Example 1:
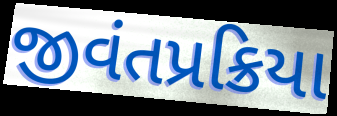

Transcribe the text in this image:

જીવંતપ્રક્રિયા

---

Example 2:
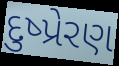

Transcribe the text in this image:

દુષ્પ્રેરણ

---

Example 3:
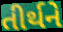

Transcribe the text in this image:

તીર્થને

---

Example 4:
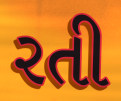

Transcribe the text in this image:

રતી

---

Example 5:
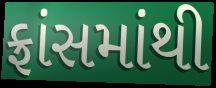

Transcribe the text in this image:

ફ્રાંસમાંથી